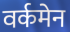
वर्कमेन